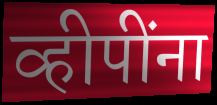
व्हीपींना